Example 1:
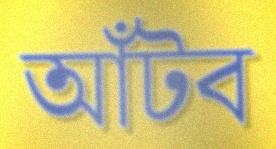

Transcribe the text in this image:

আঁটব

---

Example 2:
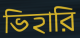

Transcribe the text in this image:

ভিহারি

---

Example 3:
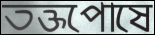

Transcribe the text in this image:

তক্তপোষে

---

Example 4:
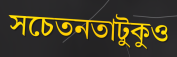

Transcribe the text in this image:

সচেতনতাটুকুও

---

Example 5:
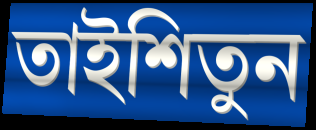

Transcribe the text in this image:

তাইশিতুন